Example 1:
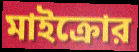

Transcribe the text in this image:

মাইক্রোর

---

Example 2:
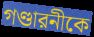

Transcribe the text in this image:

গণ্ডারনীকে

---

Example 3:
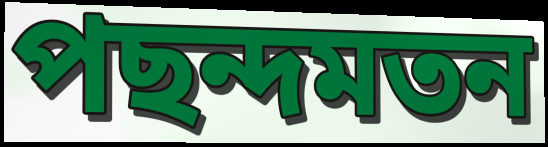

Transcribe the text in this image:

পছন্দমতন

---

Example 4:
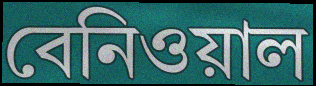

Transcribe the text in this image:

বেনিওয়াল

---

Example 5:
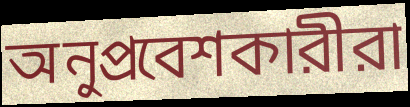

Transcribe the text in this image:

অনুপ্রবেশকারীরা